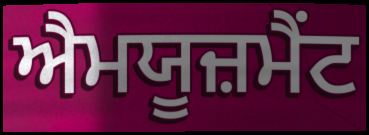
ਐਮਯੂਜ਼ਮੈਂਟ